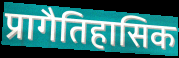
प्रागैतिहासिक